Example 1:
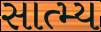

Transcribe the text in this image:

સાત્મ્ય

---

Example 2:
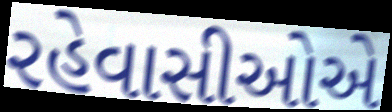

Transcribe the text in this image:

રહેવાસીઓએ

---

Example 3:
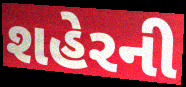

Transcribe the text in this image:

શહેરની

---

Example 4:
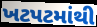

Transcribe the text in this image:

ખટપટમાંથી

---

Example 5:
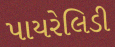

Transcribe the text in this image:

પાયરેલિડી